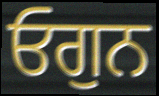
ਓਗੁਨ